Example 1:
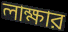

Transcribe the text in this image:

লাক্ষার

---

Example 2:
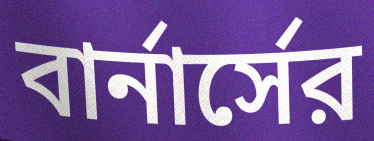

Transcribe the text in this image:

বার্নার্সের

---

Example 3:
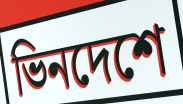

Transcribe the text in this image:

ভিনদেশে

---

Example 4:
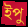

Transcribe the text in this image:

ইপু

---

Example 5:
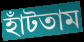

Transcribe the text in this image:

হাঁটতাম